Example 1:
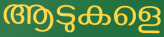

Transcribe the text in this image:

ആടുകളെ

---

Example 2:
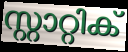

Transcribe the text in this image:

സ്റ്റാറ്റിക്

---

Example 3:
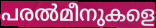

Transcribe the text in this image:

പരൽമീനുകളെ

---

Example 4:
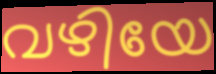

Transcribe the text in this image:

വഴിയേ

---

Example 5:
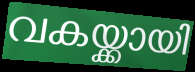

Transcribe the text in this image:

വകയ്ക്കായി